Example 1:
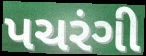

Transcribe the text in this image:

પચરંગી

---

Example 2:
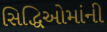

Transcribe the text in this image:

સિદ્ધિઓમાંની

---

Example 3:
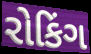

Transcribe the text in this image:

રોકિંગ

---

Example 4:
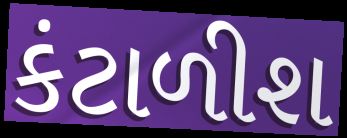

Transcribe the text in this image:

કંટાળીશ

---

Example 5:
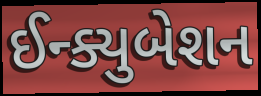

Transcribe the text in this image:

ઈન્ક્યુબેશન